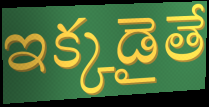
ఇక్కడైతే